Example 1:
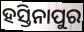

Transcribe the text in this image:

ହସ୍ତିନାପୁର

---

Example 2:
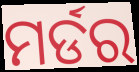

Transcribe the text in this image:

ମର୍ଡର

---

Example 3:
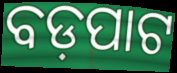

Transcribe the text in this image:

ବଡ଼ପାଟ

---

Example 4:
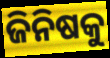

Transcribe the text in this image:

ଜିନିଷକୁ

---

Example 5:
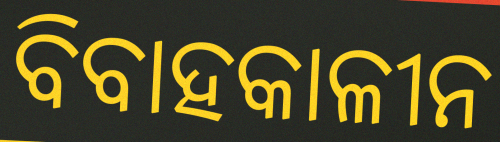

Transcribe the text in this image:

ବିବାହକାଳୀନ